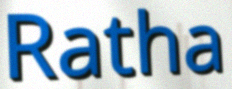
Ratha